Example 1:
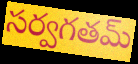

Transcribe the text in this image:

సర్వగతమ్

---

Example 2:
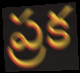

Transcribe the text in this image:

ప్రక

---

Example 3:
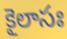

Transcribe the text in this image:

కైలాసః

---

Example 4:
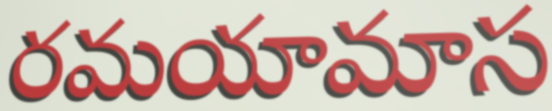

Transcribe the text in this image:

రమయామాస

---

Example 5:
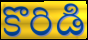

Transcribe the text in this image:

కొరిడి